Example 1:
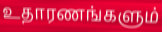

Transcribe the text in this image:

உதாரணங்களும்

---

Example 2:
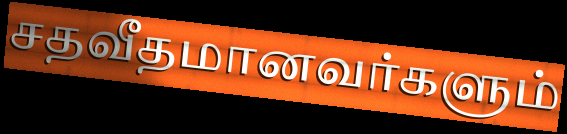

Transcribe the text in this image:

சதவீதமானவர்களும்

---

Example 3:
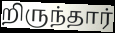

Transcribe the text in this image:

றிருந்தார்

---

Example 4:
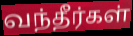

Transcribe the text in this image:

வந்தீர்கள்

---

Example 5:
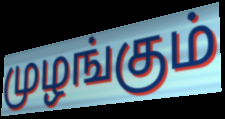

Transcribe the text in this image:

முழங்கும்